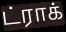
ட்ராக்